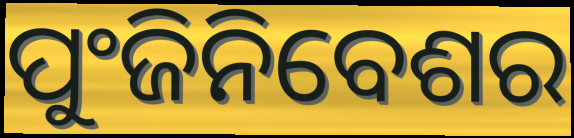
ପୁଂଜିନିବେଶର